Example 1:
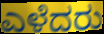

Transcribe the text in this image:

ಎಳೆದರು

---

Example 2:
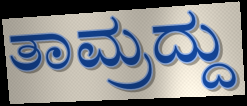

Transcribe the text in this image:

ತಾಮ್ರದ್ದು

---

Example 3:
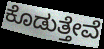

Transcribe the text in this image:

ಕೊಡುತ್ತೇವೆ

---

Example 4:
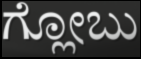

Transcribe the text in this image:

ಗ್ಲೋಬು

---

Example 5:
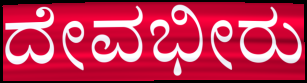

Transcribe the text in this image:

ದೇವಭೀರು